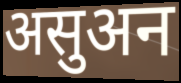
असुअन